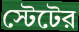
স্টেটের